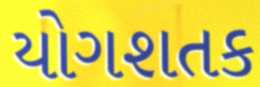
યોગશતક